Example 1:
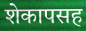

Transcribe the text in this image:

शेकापसह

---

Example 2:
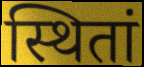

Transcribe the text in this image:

स्थितां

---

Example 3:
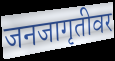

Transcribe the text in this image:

जनजागृतीवर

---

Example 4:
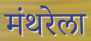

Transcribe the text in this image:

मंथरेला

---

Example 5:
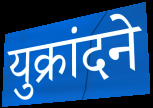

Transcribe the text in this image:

युक्रांदने